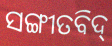
ସଙ୍ଗୀତବିଦ୍